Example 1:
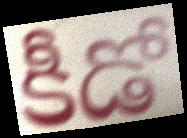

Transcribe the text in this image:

కీడో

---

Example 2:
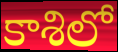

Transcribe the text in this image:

కాశిలో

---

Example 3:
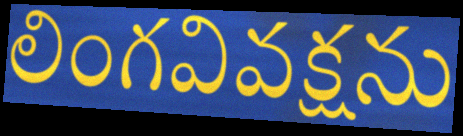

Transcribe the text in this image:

లింగవివక్షను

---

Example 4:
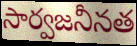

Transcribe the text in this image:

సార్వజనీనత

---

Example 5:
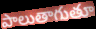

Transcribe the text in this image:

పాలుతాగుతూ